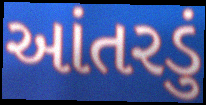
આંતરડું